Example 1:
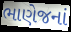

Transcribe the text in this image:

ભાણેજનાં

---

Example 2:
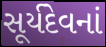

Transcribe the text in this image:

સૂર્યદેવનાં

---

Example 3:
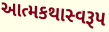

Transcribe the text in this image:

આત્મકથાસ્વરૂપ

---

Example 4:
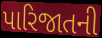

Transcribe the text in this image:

પારિજાતની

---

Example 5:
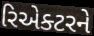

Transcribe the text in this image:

રિએક્ટરને